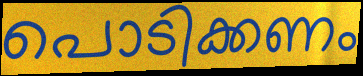
പൊടിക്കണം